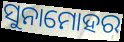
ସୁନାମୋହର